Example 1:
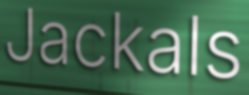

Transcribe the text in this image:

Jackals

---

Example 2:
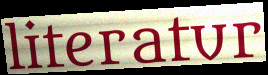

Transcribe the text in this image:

literatur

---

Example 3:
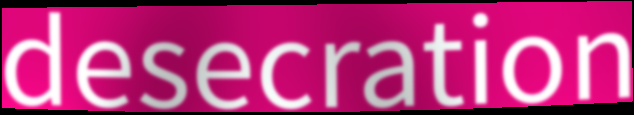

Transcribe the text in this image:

desecration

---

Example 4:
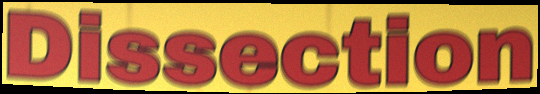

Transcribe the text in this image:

Dissection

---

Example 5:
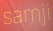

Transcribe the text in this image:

samji